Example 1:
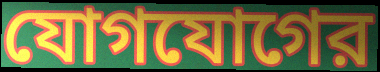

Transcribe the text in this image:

যোগযোগের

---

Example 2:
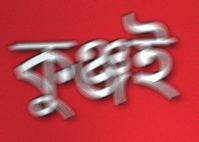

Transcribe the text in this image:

কুঞ্জই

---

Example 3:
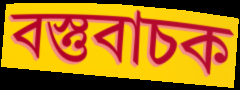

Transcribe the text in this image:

বস্তুবাচক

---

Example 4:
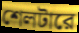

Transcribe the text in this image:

শেলটারে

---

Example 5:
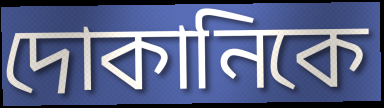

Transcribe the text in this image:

দোকানিকে